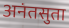
अनंतसुता